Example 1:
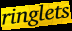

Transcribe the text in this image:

ringlets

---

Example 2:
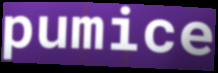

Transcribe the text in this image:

pumice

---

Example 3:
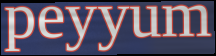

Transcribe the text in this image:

peyyum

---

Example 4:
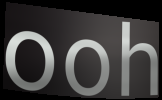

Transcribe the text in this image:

ooh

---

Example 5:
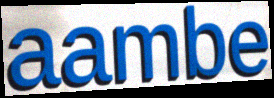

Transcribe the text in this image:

aambe